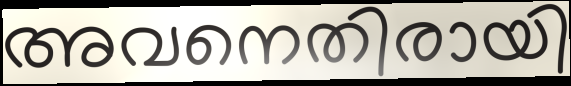
അവനെതിരായി